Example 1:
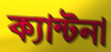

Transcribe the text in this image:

ক্যান্টনা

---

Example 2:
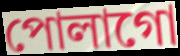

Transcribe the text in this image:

পোলাগো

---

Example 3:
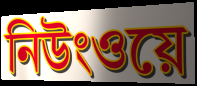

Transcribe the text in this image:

নিউংওয়ে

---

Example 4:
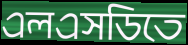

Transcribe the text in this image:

এলএসডিতে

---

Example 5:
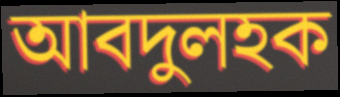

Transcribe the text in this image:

আবদুলহক